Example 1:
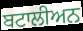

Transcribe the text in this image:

ਬਟਾਲੀਅਨ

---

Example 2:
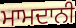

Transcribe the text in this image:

ਮਾਮਦਾਨੀ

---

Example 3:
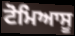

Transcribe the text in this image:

ਟੋਮਿਆਸੂ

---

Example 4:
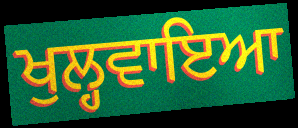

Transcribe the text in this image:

ਖੁਲ੍ਹਵਾਇਆ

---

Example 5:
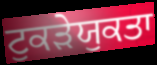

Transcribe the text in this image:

ਟੁਕੜੇਯੁਕਤਾ